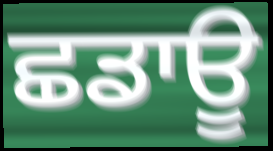
ਛਡਾਊ